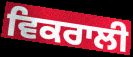
ਵਿਕਰਾਲੀ